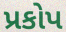
પ્રકોપ